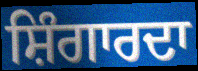
ਸ਼ਿੰਗਾਰਦਾ